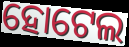
ହୋଟେଲ